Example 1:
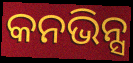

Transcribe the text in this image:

କନଭିନ୍ସ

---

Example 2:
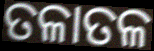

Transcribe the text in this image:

ତଳାତଳ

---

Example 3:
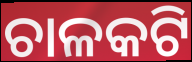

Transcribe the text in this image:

ଚାଳକଟି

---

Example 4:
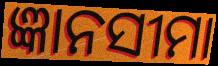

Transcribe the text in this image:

ଜ୍ଞାନସୀମା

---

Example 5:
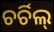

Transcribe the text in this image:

ଚର୍ଚିଲ୍